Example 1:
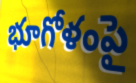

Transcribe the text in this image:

భూగోళంపై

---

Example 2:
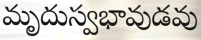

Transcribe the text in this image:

మృదుస్వభావుడవు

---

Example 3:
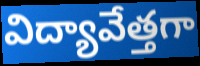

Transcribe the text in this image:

విద్యావేత్తగా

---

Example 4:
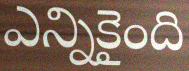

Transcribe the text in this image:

ఎన్నికైంది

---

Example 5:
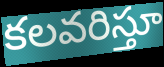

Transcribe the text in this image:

కలవరిస్తూ